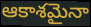
ఆకాశమైనా